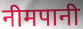
नीमपानी